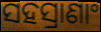
ସହସ୍ରାଣାଂ